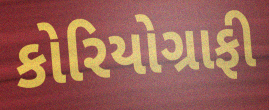
કોરિયોગ્રાફી